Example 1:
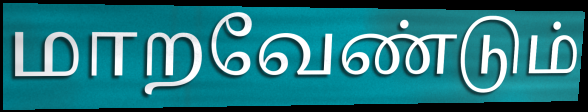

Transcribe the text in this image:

மாறவேண்டும்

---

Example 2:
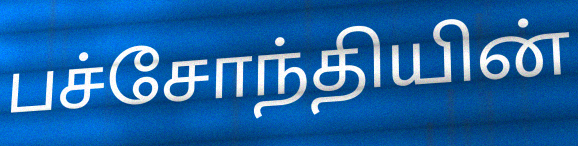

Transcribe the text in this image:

பச்சோந்தியின்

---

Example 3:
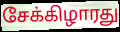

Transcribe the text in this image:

சேக்கிழாரது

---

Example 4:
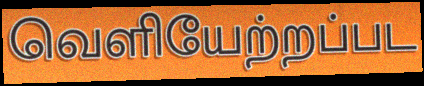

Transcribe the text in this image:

வெளியேற்றப்பட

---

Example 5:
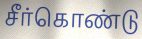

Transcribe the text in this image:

சீர்கொண்டு